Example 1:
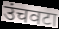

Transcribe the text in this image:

उंचवटा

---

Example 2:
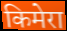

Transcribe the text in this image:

किमेरा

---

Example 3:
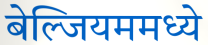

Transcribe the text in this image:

बेल्जियममध्ये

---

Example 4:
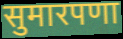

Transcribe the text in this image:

सुमारपणा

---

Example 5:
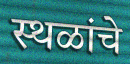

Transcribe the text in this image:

स्थळांचे